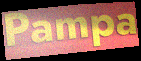
Pampa